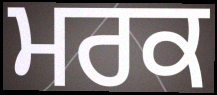
ਮਰਕ